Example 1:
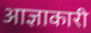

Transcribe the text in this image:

आज्ञाकारी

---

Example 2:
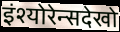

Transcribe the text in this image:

इंश्योरेन्सदेखो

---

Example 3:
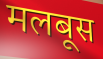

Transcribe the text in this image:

मलबूस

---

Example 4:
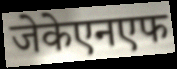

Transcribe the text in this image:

जेकेएनएफ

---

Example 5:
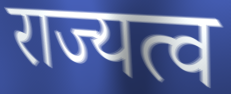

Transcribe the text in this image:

राज्यत्व